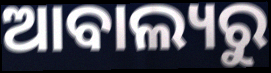
ଆବାଲ୍ୟରୁ